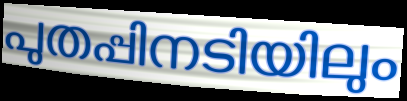
പുതപ്പിനടിയിലും